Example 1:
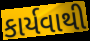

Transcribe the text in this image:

કાર્યવાથી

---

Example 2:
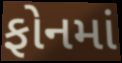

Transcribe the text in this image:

ફોનમાં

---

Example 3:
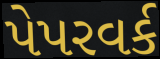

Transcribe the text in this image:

પેપરવર્ક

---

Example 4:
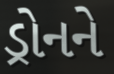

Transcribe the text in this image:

ડ્રોનને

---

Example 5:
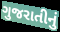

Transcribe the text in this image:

ગુજરાતીનું